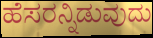
ಹೆಸರನ್ನಿಡುವುದು